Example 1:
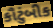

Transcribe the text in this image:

કૌટુંબીક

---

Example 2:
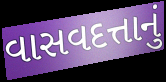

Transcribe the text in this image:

વાસવદત્તાનું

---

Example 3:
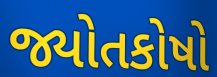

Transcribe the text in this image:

જ્યોતકોષો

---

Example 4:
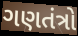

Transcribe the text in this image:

ગણતંત્રો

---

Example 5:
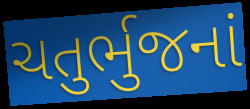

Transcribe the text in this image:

ચતુર્ભુજનાં